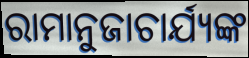
ରାମାନୁଜାଚାର୍ଯ୍ୟଙ୍କ